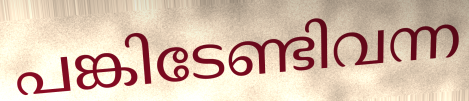
പങ്കിടേണ്ടിവന്ന